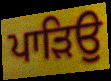
ਪਾੜਿਉ